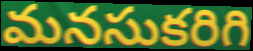
మనసుకరిగి